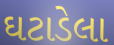
ઘટાડેલા